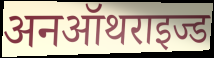
अनऑथराइज्ड